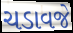
ચડાવજે